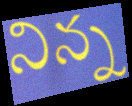
నిన్న